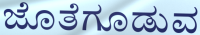
ಜೊತೆಗೂಡುವ